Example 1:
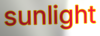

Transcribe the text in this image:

sunlight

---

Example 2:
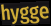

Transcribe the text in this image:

hygge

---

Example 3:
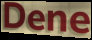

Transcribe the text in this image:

Dene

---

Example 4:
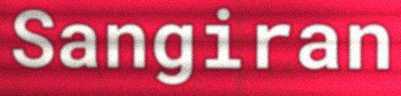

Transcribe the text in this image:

Sangiran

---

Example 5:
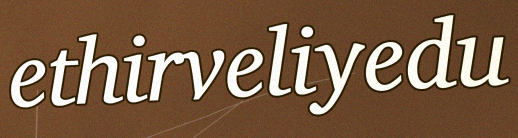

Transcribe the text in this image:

ethirveliyedu